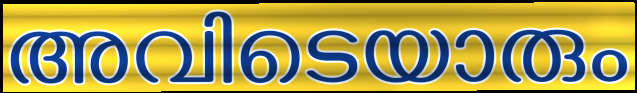
അവിടെയാരും